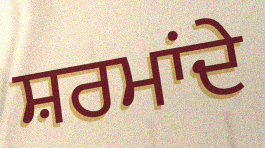
ਸ਼ਰਮਾਂਦੇ